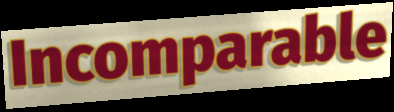
Incomparable